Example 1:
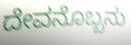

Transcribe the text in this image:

ದೇವನೊಬ್ಬನು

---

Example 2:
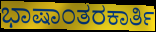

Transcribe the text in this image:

ಭಾಷಾಂತರಕಾರ್ತಿ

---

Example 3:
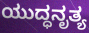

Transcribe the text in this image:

ಯುದ್ಧನೃತ್ಯ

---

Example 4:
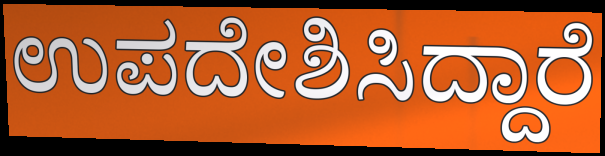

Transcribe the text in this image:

ಉಪದೇಶಿಸಿದ್ದಾರೆ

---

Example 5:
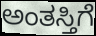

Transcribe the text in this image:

ಅಂತಸ್ತಿಗೆ